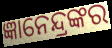
ଜ୍ଞାନେନ୍ଦ୍ରଙ୍କର